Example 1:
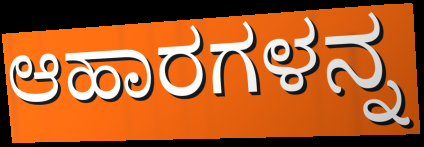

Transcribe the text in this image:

ಆಹಾರಗಳನ್ನ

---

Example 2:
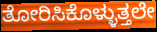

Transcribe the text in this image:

ತೋರಿಸಿಕೊಳ್ಳುತ್ತಲೇ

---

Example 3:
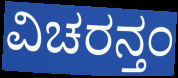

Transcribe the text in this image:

ವಿಚರನ್ತಂ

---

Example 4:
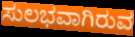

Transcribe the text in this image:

ಸುಲಭವಾಗಿರುವ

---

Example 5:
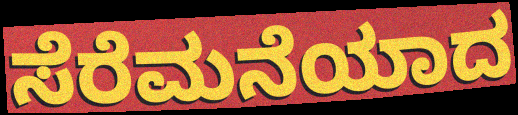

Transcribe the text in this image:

ಸೆರೆಮನೆಯಾದ